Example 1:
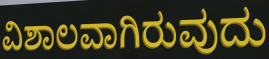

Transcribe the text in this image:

ವಿಶಾಲವಾಗಿರುವುದು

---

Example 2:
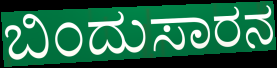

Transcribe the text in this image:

ಬಿಂದುಸಾರನ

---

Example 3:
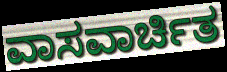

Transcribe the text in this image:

ವಾಸವಾರ್ಚಿತ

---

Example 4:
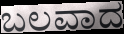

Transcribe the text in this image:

ಬಲವಾದ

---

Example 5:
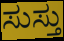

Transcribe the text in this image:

ಸುಸ್ತು